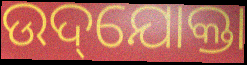
ଉଦ୍‌ଯୋକ୍ତା